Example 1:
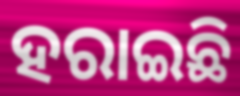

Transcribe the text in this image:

ହରାଇଛି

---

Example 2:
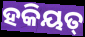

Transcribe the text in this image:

ହକିୟତ୍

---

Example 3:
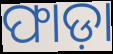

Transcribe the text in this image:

ଫାଡ଼ା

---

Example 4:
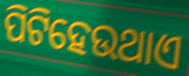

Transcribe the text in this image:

ପିଟିହେଉଥାଏ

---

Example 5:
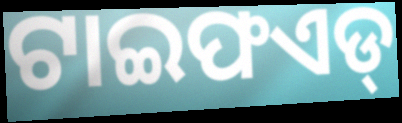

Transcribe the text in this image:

ଟାଇଫଏଡ୍